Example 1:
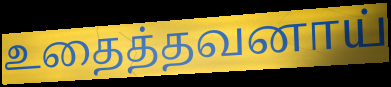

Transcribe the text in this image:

உதைத்தவனாய்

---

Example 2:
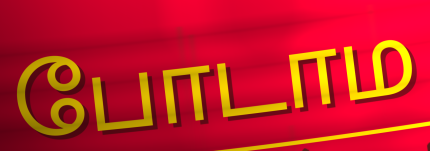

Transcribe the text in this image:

போடாம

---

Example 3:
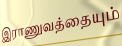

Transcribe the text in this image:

இராணுவத்தையும்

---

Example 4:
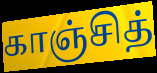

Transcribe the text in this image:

காஞ்சித்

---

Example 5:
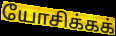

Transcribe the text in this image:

யோசிக்கக்